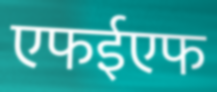
एफईएफ